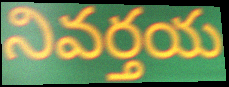
నివర్తయ